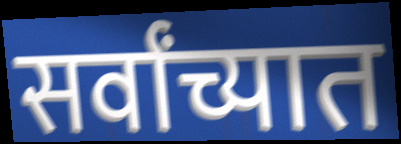
सर्वांच्यात